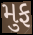
મુફ